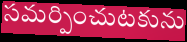
సమర్పించుటకును